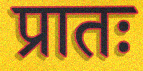
प्रातः